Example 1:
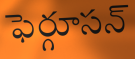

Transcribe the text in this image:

ఫెర్గూసన్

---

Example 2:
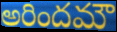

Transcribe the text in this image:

అరిందమౌ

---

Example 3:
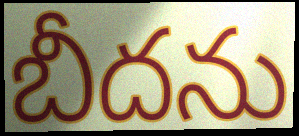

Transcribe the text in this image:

బీదను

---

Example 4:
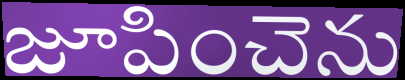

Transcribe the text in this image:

జూపించెను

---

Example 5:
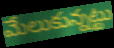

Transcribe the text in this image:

మేలుకున్నట్టు